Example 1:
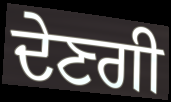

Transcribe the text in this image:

ਦੇਣਗੀ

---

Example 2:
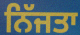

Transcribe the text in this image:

ਨਿੱਜਤਾ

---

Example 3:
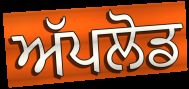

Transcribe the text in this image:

ਅੱਪਲੋਡ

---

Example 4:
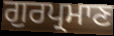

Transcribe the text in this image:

ਗੁਰਪ੍ਰਮਾਣ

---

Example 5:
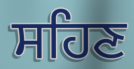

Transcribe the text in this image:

ਸਹਿਣ